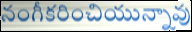
నంగీకరించియున్నావు